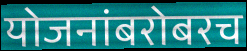
योजनांबरोबरच